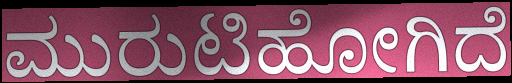
ಮುರುಟಿಹೋಗಿದೆ